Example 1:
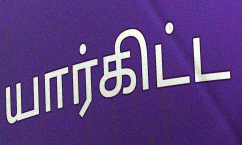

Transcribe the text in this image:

யார்கிட்ட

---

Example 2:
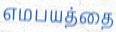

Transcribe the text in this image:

எமபயத்தை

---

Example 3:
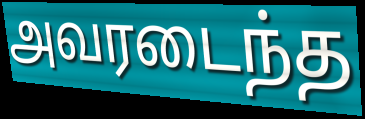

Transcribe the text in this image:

அவரடைந்த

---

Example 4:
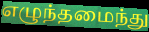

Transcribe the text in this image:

எழுந்தமைந்து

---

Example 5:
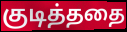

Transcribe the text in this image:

குடித்ததை